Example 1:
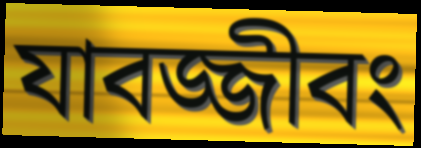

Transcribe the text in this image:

যাবজ্জীবং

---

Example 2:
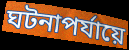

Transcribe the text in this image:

ঘটনাপর্যায়ে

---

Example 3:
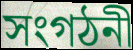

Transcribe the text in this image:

সংগঠনী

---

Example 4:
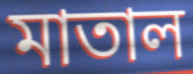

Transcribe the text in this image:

মাতাল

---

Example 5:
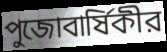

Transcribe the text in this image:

পুজোবার্ষিকীর